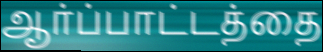
ஆர்ப்பாட்டத்தை